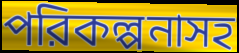
পরিকল্পনাসহ